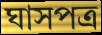
ঘাসপত্র